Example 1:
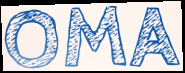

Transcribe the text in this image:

OMA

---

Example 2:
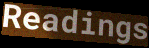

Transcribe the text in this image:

Readings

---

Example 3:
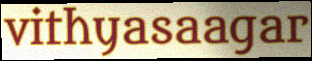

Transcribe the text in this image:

vithyasaagar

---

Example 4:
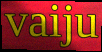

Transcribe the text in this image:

vaiju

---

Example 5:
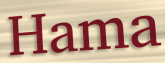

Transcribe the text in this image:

Hama